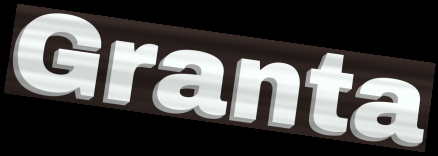
Granta